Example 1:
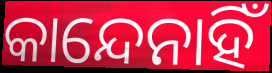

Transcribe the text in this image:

କାନ୍ଦେନାହିଁ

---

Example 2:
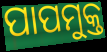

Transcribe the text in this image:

ପାପମୁକ୍ତ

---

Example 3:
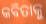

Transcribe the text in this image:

କବିତାକୁ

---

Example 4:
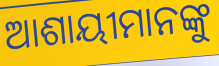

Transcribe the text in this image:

ଆଶାୟୀମାନଙ୍କୁ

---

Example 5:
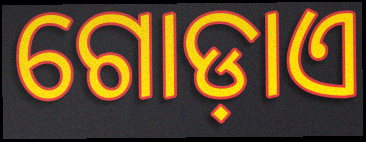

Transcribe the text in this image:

ଗୋଡ଼ାଏ